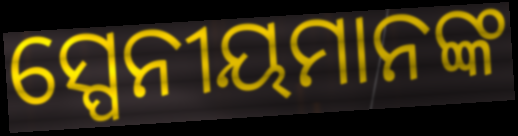
ସ୍ପେନୀୟମାନଙ୍କ